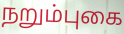
நறும்புகை